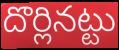
దొర్లినట్టు